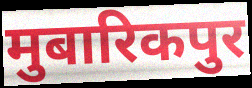
मुबारिकपुर